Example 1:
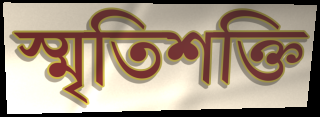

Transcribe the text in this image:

স্মৃতিশক্তি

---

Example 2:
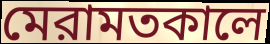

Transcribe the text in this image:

মেরামতকালে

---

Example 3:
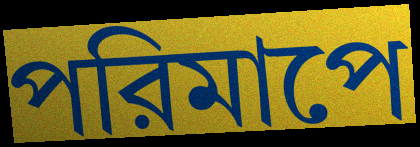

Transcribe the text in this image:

পরিমাপে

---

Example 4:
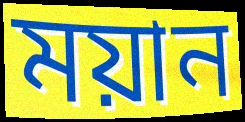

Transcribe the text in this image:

ময়ান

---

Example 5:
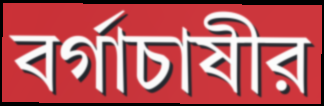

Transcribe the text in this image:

বর্গাচাষীর